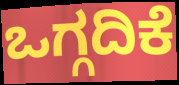
ಒಗ್ಗದಿಕೆ